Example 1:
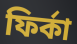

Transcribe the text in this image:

ফির্কা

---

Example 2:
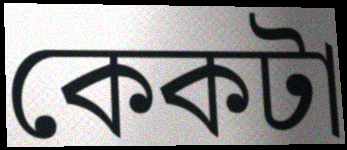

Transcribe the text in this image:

কেকটা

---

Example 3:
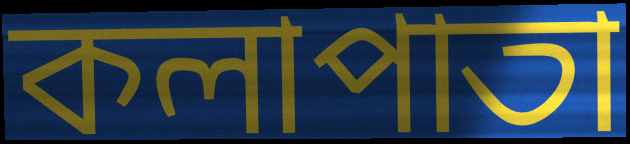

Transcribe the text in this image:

কলাপাতা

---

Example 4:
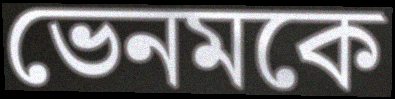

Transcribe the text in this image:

ভেনমকে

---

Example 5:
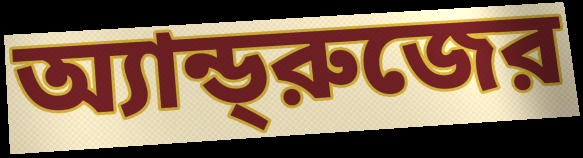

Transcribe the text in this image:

অ্যান্ড্‌রুজের